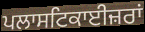
ਪਲਾਸਟਿਕਾਈਜ਼ਰਾਂ